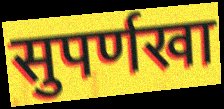
सुपर्णखा